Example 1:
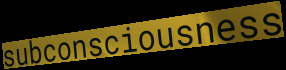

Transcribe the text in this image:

subconsciousness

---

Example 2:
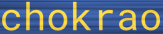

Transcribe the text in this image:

chokrao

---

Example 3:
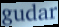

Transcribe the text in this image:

gudar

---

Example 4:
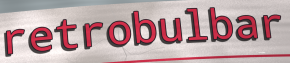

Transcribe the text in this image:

retrobulbar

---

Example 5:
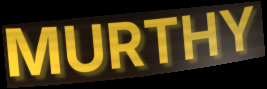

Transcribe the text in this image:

MURTHY